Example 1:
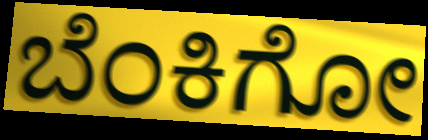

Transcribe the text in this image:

ಬೆಂಕಿಗೋ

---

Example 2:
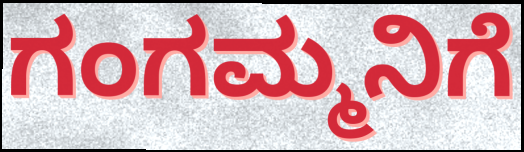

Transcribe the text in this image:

ಗಂಗಮ್ಮನಿಗೆ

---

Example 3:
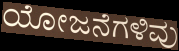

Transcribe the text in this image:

ಯೋಜನೆಗಳಿವು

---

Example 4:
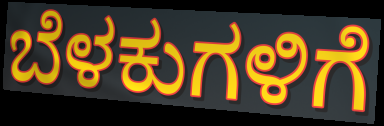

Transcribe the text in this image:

ಬೆಳಕುಗಳಿಗೆ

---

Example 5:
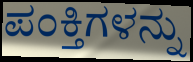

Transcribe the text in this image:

ಪಂಕ್ತಿಗಳನ್ನು